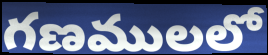
గణములలో